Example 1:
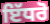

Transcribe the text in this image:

ਇੱਧਰੋ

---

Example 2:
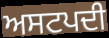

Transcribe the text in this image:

ਅਸਟਪਦੀ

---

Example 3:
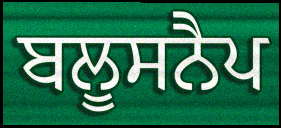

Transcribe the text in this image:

ਬਲੂਸਨੈਪ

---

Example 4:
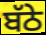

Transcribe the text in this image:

ਬੱਠੇ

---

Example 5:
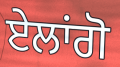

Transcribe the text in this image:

ਏਲਾਂਗੋ